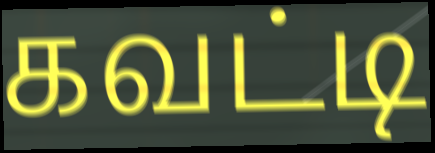
கவட்டி